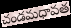
చండమధావత